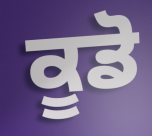
ਕੂਡੋ